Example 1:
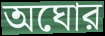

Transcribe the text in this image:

অঘোর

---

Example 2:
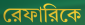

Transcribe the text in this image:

রেফারিকে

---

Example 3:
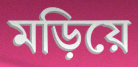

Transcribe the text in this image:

মড়িয়ে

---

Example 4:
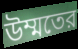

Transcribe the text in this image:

উম্মতের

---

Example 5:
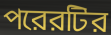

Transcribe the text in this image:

পরেরটির